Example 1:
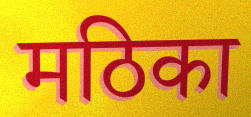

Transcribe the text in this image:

मठिका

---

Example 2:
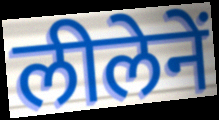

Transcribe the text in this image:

लीलेनें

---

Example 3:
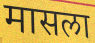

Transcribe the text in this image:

मासला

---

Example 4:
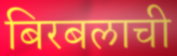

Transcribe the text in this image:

बिरबलाची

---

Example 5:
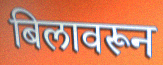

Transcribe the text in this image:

बिलावरून